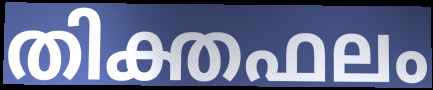
തിക്തഫലം